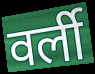
वर्ली